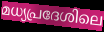
മധ്യപ്രദേശിലെ